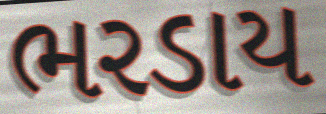
ભરડાય